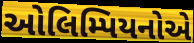
ઓલિમ્પિયનોએ